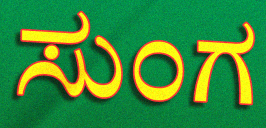
ಸುಂಗ